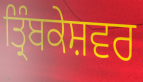
ਤ੍ਰਿੰਬਕੇਸ਼ਵਰ